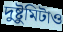
দুষ্টুমিটাও